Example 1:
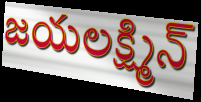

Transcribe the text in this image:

జయలక్ష్మిన్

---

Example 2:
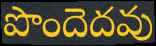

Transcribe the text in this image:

పొందెదవు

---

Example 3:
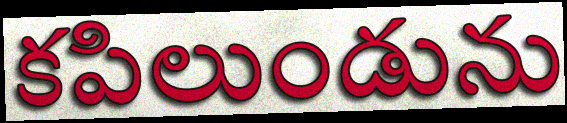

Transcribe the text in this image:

కపిలుండును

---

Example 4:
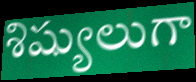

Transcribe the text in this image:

శిష్యులుగా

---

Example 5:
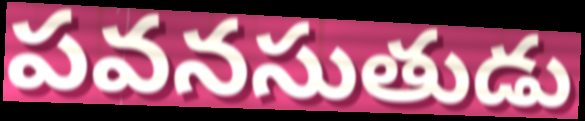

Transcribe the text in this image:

పవనసుతుడు